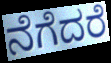
ನೆಗೆದರೆ